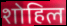
शोहिल